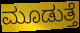
ಮೂಡುತ್ತೆ